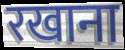
रखाना